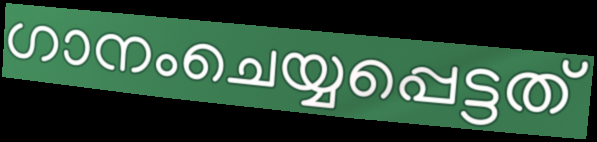
ഗാനംചെയ്യപ്പെട്ടത്